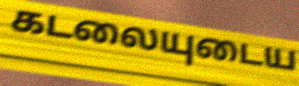
கடலையுடைய